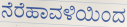
ನೆರೆಹಾವಳಿಯಿಂದ